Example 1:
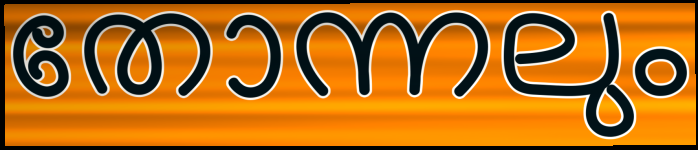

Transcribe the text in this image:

തോന്നലും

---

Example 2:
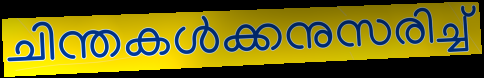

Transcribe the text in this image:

ചിന്തകൾക്കനുസരിച്ച്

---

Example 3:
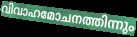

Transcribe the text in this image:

വിവാഹമോചനത്തിന്നും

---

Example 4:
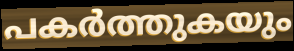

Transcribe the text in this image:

പകർത്തുകയും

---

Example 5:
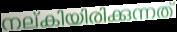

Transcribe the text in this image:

നല്‌കിയിരിക്കുന്നത്